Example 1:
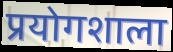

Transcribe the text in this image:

प्रयोगशाला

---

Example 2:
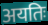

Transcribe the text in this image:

अयतिः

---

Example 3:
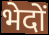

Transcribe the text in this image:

भेदों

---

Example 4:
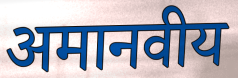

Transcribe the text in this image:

अमानवीय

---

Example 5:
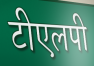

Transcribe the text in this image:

टीएलपी